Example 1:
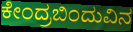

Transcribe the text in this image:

ಕೇಂದ್ರಬಿಂದುವಿನ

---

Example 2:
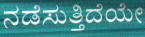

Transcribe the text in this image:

ನಡೆಸುತ್ತಿದೆಯೇ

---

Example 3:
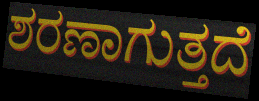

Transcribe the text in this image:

ಶರಣಾಗುತ್ತದೆ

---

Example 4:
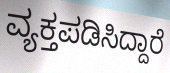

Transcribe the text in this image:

ವ್ಯಕ್ತಪಡಿಸಿದ್ದಾರೆ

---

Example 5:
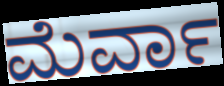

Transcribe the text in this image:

ಮೆರ್ವಾ